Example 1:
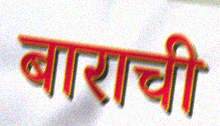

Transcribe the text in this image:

बाराची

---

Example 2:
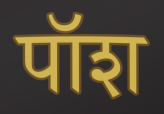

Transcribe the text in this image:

पॉश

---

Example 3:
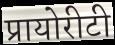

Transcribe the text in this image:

प्रायोरीटी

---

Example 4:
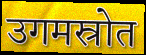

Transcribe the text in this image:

उगमस्रोत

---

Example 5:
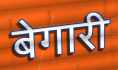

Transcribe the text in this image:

बेगारी